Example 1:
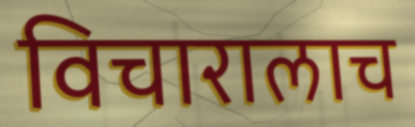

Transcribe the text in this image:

विचारालाच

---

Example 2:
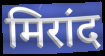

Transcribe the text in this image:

मिरांद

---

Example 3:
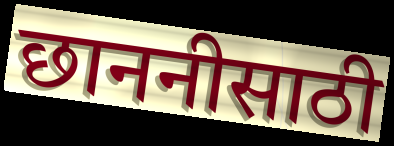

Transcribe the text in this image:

छाननीसाठी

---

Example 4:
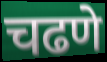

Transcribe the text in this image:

चढणे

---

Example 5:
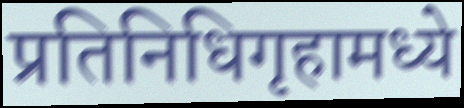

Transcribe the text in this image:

प्रतिनिधिगृहामध्ये